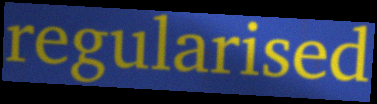
regularised